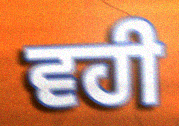
ਵਹੀ